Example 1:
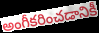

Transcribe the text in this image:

అంగీకరించడానికీ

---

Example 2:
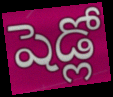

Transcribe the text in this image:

షెడ్లో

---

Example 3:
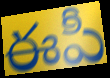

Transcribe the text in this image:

ఈపీ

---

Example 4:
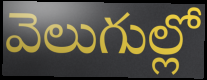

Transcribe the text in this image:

వెలుగుల్లో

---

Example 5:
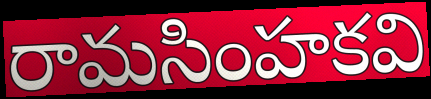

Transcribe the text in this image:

రామసింహకవి